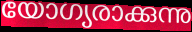
യോഗ്യരാക്കുന്നു